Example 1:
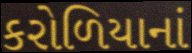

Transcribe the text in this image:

કરોળિયાનાં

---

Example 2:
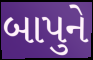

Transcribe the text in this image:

બાપુને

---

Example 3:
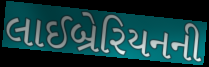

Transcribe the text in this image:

લાઈબ્રેરિયનની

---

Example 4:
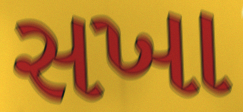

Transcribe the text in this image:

સખા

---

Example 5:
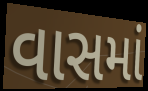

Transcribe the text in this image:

વાસમાં